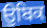
ਉਬਿਕ